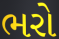
ભરો